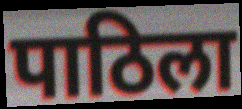
पाठिला